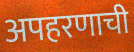
अपहरणाची